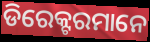
ଡିରେକ୍ଟରମାନେ